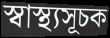
স্বাস্থ্যসূচক